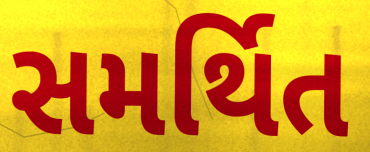
સમર્થિત